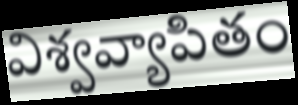
విశ్వవ్యాపితం